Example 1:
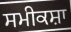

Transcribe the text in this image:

ਸਮੀਕਸ਼ਾ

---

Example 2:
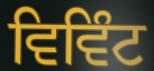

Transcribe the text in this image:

ਵਿਵਿੰਟ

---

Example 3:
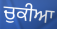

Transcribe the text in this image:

ਚੁਕੀਆ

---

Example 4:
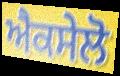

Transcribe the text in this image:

ਐਕਸੇਲੋ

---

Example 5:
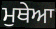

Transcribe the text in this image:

ਮੁਥੇਆ